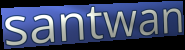
santwan